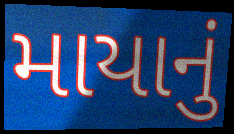
માયાનું